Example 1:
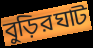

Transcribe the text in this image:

বুড়িরঘাট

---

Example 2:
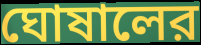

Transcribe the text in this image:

ঘোষালের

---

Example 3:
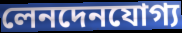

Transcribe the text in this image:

লেনদেনযোগ্য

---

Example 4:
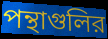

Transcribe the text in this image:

পন্থাগুলির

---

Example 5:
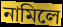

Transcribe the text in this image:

নামিলে